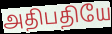
அதிபதியே